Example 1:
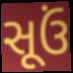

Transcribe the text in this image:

સૂઉં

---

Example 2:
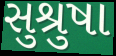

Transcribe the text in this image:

સુશ્રુષા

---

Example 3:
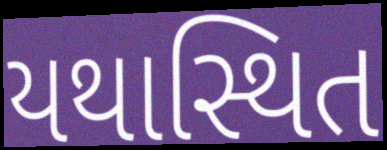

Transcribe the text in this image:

યથાસ્થિત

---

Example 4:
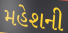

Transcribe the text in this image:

મહેશની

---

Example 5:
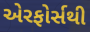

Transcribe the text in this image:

એરફોર્સથી